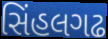
સિંહલગઢ